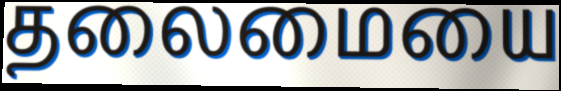
தலைமையை